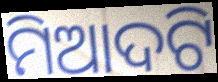
ମିଆଦଟି